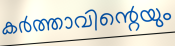
കർത്താവിന്റെയും